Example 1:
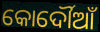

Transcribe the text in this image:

କୋର୍ଦୌଆଁ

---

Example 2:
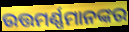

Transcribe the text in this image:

ଉତ୍ତମର୍ଣ୍ଣମାନଙ୍କର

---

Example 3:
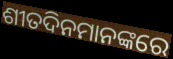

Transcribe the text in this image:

ଶୀତଦିନମାନଙ୍କରେ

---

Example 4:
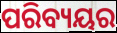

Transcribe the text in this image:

ପରିବ୍ୟୟର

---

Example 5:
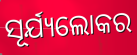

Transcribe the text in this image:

ସୂର୍ଯ୍ୟଲୋକର